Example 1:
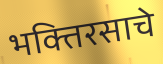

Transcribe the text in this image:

भक्तिरसाचे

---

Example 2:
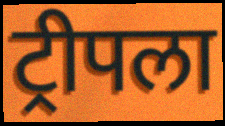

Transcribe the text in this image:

ट्रीपला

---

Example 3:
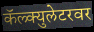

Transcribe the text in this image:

कॅल्क्युलेटरवर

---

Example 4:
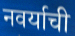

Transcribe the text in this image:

नवर्याची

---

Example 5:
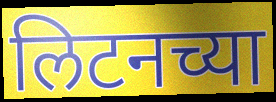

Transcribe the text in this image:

लिटनच्या